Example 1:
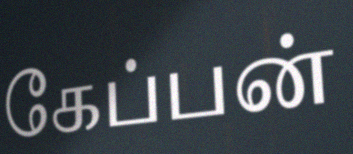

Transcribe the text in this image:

கேப்பன்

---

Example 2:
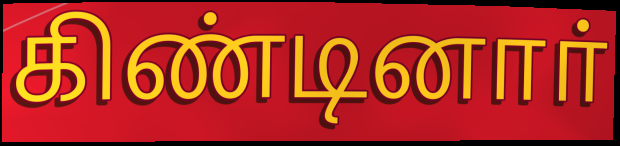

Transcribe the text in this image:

கிண்டினார்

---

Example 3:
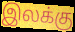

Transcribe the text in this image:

இலக்கு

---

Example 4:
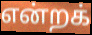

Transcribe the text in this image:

என்றக்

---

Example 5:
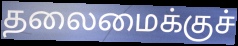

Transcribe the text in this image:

தலைமைக்குச்